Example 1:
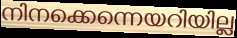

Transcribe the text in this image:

നിനക്കെന്നെയറിയില്ല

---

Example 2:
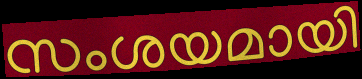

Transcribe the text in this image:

സംശയമായി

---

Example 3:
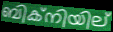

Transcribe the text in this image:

ബിക്നിയില്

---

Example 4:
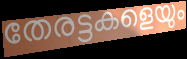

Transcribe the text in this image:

തേരട്ടകളെയും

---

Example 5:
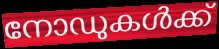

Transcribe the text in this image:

നോഡുകൾക്ക്